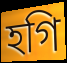
হগি